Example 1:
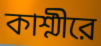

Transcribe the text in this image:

কাশ্মীরে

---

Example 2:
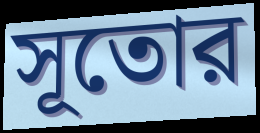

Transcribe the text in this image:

সূতোর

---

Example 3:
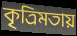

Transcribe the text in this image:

কৃত্রিমতায়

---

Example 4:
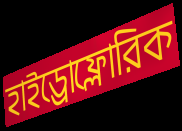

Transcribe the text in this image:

হাইড্রোফ্লোরিক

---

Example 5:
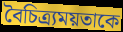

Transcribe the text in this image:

বৈচিত্র্যময়তাকে